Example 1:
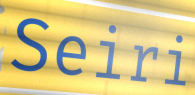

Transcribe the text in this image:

Seiri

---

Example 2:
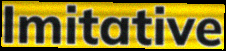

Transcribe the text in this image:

Imitative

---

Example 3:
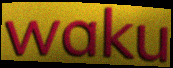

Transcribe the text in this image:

waku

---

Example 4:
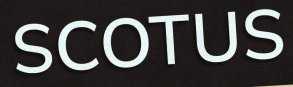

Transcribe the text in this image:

SCOTUS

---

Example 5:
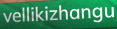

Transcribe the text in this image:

vellikizhangu